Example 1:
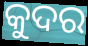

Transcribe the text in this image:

କୁଦର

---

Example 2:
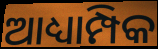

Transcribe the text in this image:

ଆଧ୍ୟାମ୍ପିକ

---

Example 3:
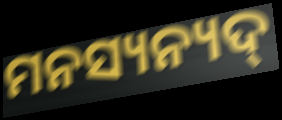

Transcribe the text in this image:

ମନସ୍ୟନ୍ୟଦ୍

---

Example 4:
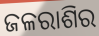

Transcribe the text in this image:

ଜଳରାଶିର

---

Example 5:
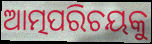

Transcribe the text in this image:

ଆତ୍ମପରିଚୟକୁ